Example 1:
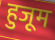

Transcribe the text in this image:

हुजूम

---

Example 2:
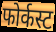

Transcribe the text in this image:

फोर्कस्ट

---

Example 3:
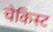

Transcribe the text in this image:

चेकिस्ट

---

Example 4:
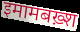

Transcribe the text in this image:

इमामबख़्श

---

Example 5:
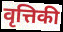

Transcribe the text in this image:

वृत्तिकी